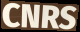
CNRS